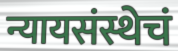
न्यायसंस्थेचं